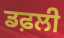
ਡਫ਼ਲੀ